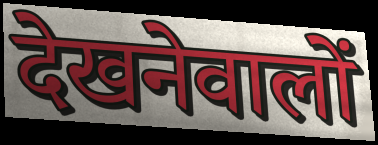
देखनेवालों